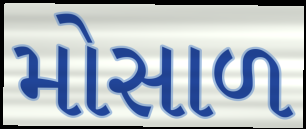
મોસાળ